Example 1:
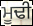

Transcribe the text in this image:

ਮੂਢੀ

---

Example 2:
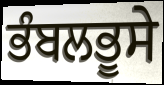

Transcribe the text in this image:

ਭੰਬਲਭੂਸੇ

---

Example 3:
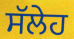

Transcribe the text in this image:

ਸੱਲੇਹ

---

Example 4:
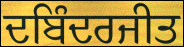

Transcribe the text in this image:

ਦਬਿੰਦਰਜੀਤ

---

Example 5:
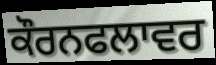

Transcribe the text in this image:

ਕੌਰਨਫਲਾਵਰ